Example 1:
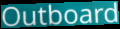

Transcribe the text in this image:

Outboard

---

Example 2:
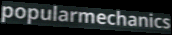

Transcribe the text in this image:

popularmechanics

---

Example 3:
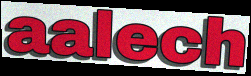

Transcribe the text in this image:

aalech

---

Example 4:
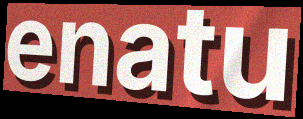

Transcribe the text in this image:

enatu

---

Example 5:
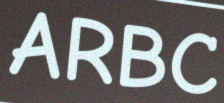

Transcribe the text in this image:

ARBC